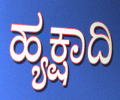
ಹ್ಯಕ್ಷಾದಿ